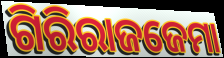
ଗିରିରାଜଜେମା